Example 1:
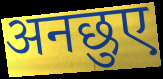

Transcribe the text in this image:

अनछुए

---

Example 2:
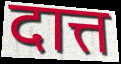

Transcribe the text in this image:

दात्त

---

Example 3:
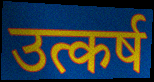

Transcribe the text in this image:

उत्कर्ष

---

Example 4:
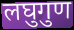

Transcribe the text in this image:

लघुगुण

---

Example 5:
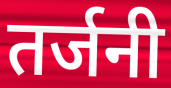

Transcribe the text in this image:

तर्जनी